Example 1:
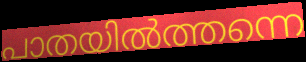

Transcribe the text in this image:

പാതയിൽത്തന്നെ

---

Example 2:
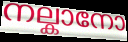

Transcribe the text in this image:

നല്കാനോ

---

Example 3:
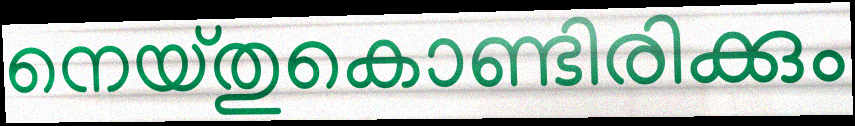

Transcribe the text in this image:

നെയ്തുകൊണ്ടിരിക്കും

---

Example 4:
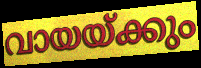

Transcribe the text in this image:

വായയ്ക്കും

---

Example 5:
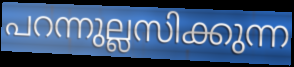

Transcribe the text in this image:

പറന്നുല്ലസിക്കുന്ന